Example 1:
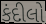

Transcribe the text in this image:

કંદીલો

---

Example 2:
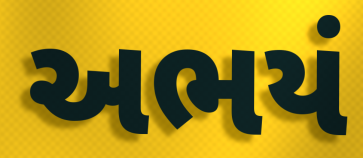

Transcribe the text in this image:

અભયં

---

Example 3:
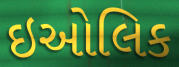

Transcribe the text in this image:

ઇઓલિક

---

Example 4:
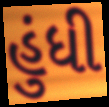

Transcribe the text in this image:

હુંધી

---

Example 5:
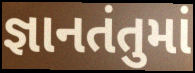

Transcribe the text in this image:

જ્ઞાનતંતુમાં